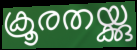
ക്രൂരതയ്ക്കു